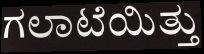
ಗಲಾಟೆಯಿತ್ತು